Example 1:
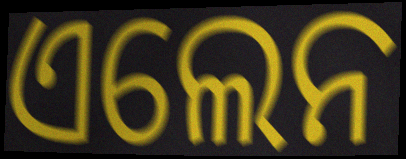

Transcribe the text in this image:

ଏଲେନ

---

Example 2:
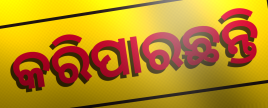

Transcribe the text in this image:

କରିପାରଛନ୍ତି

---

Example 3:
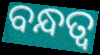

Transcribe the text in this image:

ବନ୍ଧତ୍ୱ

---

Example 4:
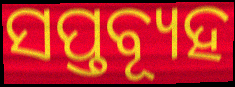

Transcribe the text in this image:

ସପ୍ତବ୍ୟୂହ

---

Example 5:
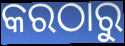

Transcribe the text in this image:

କରଠାରୁ